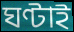
ঘণ্টাই